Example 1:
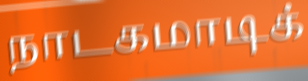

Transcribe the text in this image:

நாடகமாடிக்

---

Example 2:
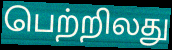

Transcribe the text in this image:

பெற்றிலது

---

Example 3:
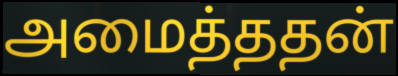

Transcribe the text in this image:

அமைத்ததன்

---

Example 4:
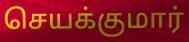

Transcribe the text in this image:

செயக்குமார்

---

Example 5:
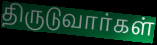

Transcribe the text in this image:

திருடுவார்கள்